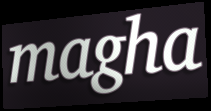
magha